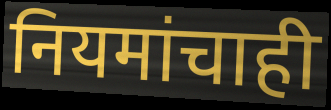
नियमांचाही